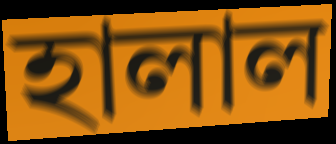
হালাল